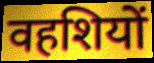
वहशियों